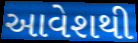
આવેશથી